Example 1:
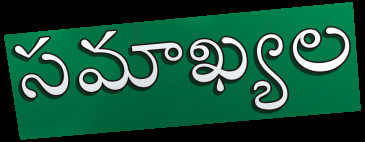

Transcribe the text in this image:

సమాఖ్యల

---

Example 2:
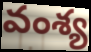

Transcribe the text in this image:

వంశ్య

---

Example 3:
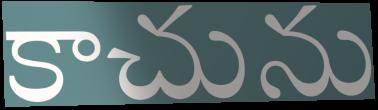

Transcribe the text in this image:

కాచును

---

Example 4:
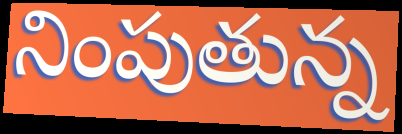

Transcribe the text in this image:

నింపుతున్న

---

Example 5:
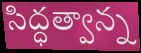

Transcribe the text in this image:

సిద్ధత్వాన్న